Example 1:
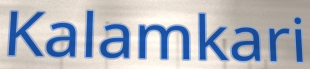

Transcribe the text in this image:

Kalamkari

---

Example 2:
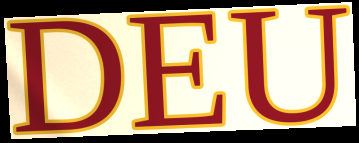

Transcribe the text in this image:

DEU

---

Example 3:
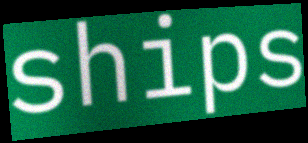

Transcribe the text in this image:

ships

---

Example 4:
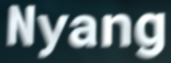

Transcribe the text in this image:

Nyang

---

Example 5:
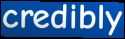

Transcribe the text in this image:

credibly